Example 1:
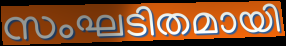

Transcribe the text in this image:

സംഘടിതമായി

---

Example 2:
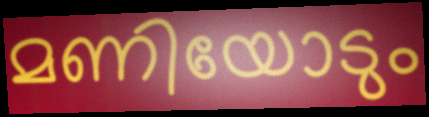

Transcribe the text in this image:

മണിയോടും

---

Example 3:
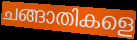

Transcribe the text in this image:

ചങ്ങാതികളെ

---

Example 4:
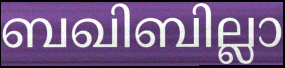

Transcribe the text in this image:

ബഖിബില്ലാ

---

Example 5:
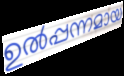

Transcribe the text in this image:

ഉൽപ്പന്നമായ